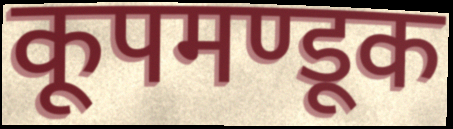
कूपमण्डूक